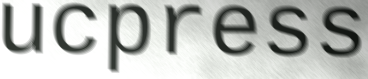
ucpress